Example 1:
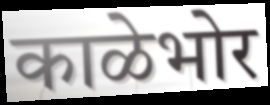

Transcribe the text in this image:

काळेभोर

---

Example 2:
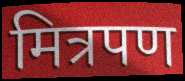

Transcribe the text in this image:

मित्रपण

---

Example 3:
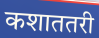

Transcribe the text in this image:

कशाततरी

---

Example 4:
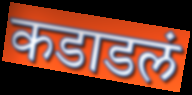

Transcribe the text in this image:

कडाडलं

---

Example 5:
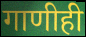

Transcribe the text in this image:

गाणीही